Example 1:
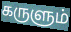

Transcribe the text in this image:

கருளும்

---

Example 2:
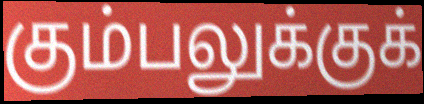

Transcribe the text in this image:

கும்பலுக்குக்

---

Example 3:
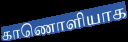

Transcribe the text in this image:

காணொளியாக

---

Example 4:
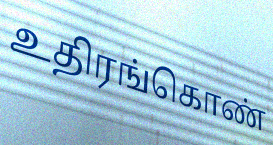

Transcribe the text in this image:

உதிரங்கொண்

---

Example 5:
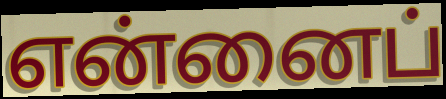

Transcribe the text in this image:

என்னைப்